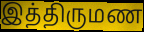
இத்திருமண